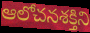
ఆలోచనశక్తిని